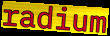
radium